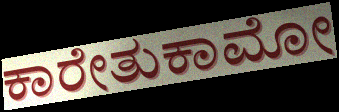
ಕಾರೇತುಕಾಮೋ